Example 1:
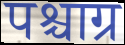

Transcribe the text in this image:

पश्चाग्र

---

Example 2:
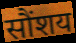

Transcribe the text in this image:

सौंशय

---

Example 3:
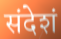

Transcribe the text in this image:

संदेशं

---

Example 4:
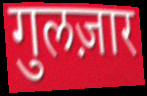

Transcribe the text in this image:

गुलज़ार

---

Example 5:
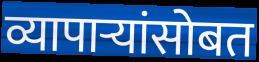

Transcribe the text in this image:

व्यापाऱ्यांसोबत